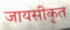
जायसीकृत